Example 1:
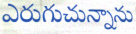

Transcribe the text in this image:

ఎరుగుచున్నాను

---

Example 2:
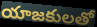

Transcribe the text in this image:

యాజకులతో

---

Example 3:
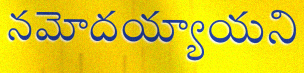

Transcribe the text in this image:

నమోదయ్యాయని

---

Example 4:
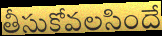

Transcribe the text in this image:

తీసుకోవలసిందే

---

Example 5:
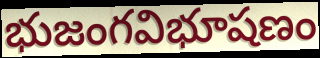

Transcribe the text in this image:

భుజంగవిభూషణం